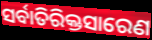
ସର୍ବାତିରିକ୍ତସାରେଣ